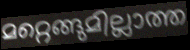
മറ്റെങ്ങുമില്ലാത്ത